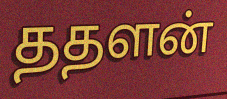
ததளன்